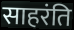
साहरंति